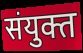
संयुक्‍त